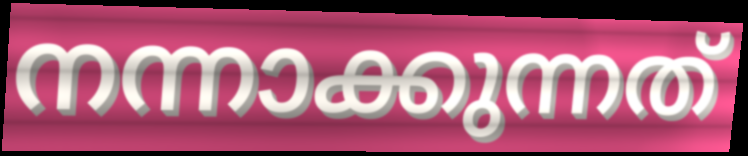
നന്നാക്കുന്നത്